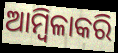
ଆମ୍ବିଳାକରି